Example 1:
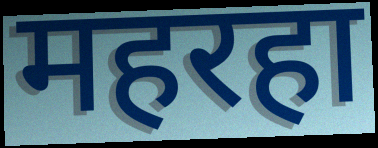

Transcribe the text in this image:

महरहा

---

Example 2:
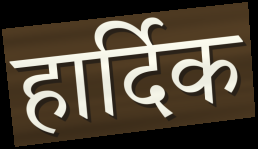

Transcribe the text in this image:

हार्दिक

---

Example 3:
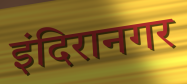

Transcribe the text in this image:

इंदिरानगर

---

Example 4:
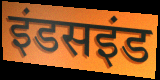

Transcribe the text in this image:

इंडसइंड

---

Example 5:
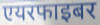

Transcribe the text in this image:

एयरफाइबर